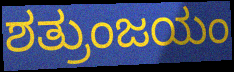
ಶತ್ರುಂಜಯಂ